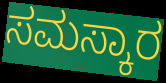
ಸಮಸ್ಕಾರ